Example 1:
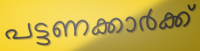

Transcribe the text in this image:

പട്ടണക്കാർക്ക്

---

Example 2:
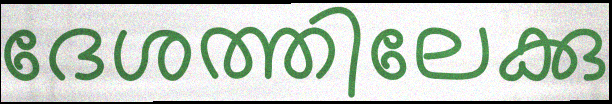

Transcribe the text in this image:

ദേശത്തിലേക്കു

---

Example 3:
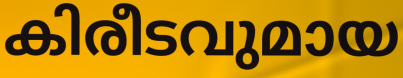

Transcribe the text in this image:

കിരീടവുമായ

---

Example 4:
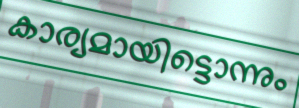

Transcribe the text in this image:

കാര്യമായിട്ടൊന്നും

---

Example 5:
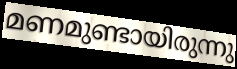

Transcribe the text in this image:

മണമുണ്ടായിരുന്നു